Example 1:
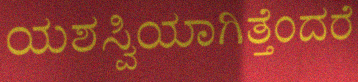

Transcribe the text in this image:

ಯಶಸ್ವಿಯಾಗಿತ್ತೆಂದರೆ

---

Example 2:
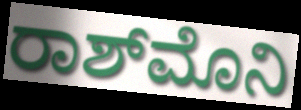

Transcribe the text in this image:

ರಾಶ್‌ಮೊನಿ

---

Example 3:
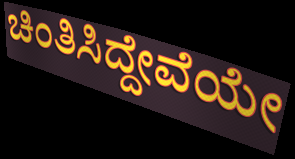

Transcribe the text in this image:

ಚಿಂತಿಸಿದ್ದೇವೆಯೇ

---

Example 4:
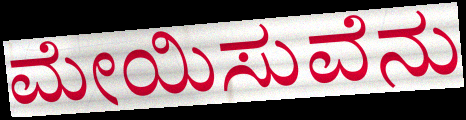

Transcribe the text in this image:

ಮೇಯಿಸುವೆನು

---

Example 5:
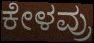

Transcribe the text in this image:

ಕೇಳವ್ರು